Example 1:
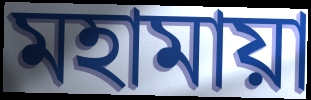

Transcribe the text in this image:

মহামায়া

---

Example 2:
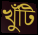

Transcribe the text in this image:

খুঁটি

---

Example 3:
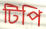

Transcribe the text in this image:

টিপি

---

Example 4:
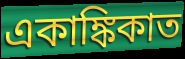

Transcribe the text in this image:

একাঙ্কিকাত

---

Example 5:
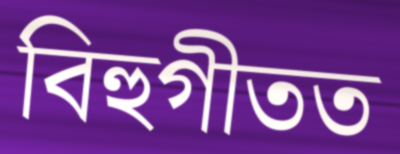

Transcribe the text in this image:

বিহুগীতত